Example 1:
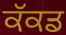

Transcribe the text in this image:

ਕੱਕਡ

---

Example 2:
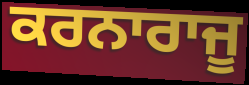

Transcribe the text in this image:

ਕਰਨਾਰਾਜੂ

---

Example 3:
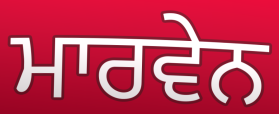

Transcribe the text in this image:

ਮਾਰਵੇਨ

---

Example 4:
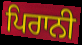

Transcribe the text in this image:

ਪਿਰਾਨੀ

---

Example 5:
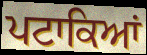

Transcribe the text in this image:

ਪਟਾਕਿਆਂ